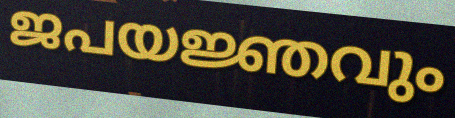
ജപയജ്ഞവും